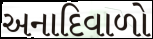
અનાદિવાળો